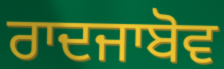
ਰਾਦਜਾਬੋਵ